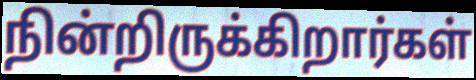
நின்றிருக்கிறார்கள்